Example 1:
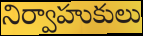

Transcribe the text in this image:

నిర్వాహుకులు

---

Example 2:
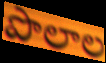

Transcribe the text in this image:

పొలాల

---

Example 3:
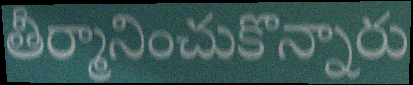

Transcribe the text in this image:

తీర్మానించుకొన్నారు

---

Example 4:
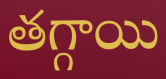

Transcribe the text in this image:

తగ్గాయి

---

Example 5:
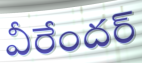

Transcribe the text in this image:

వీరేందర్